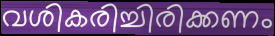
വശികരിച്ചിരിക്കണം